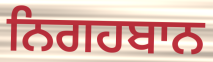
ਨਿਗਹਬਾਨ